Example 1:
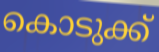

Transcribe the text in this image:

കൊടുക്ക്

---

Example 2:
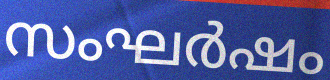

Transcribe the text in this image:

സംഘർഷം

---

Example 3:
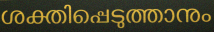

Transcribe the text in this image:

ശക്തിപ്പെടുത്താനും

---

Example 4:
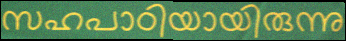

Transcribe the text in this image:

സഹപാഠിയായിരുന്നു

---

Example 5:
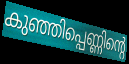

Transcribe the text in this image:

കുഞ്ഞിപ്പെണ്ണിന്റെ